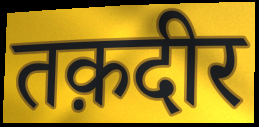
तक़दीर